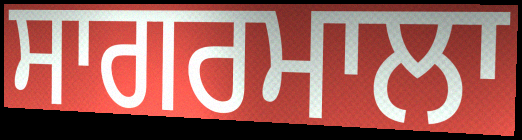
ਸਾਗਰਮਾਲਾ